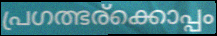
പ്രഗത്ഭര്ക്കൊപ്പം